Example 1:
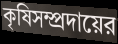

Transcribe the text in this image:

কৃষিসম্প্রদায়ের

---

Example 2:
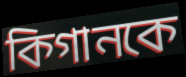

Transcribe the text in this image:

কিগানকে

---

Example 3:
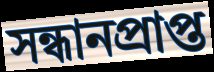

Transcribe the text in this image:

সন্ধানপ্রাপ্ত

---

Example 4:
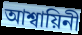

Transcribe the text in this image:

আশ্বায়িনী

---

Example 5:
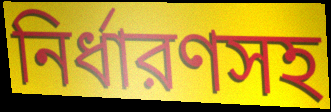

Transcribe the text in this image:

নির্ধারণসহ